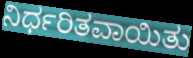
ನಿರ್ಧರಿತವಾಯಿತು